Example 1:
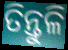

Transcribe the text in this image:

ତିନ୍ତୁଳି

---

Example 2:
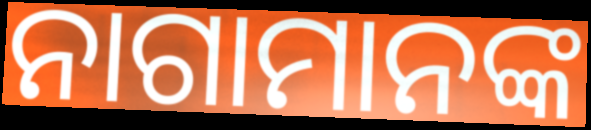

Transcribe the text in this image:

ନାଗାମାନଙ୍କ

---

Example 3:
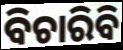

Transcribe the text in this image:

ବିଚାରିବି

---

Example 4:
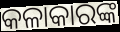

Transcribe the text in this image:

କଳାକାରଙ୍କ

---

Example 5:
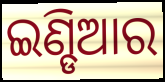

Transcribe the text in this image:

ଇଣ୍ଡିଆର